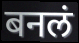
बनलं